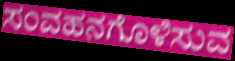
ಸಂವಹನಗೊಳಿಸುವ